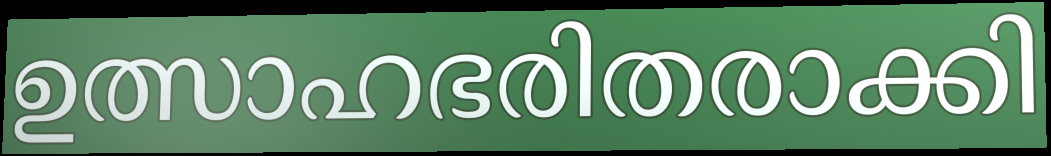
ഉത്സാഹഭരിതരാക്കി